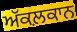
ਅੱਕਲ਼ਕਾਨ